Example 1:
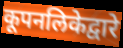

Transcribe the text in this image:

कूपनलिकेद्वारे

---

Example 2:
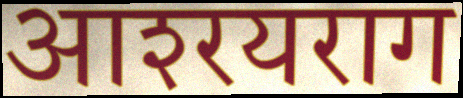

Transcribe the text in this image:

आश्रयराग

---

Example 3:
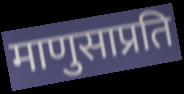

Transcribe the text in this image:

माणुसाप्रति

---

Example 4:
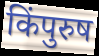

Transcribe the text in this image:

किंपुरुष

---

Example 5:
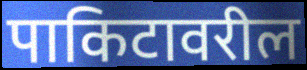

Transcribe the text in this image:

पाकिटावरील